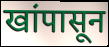
खांपासून